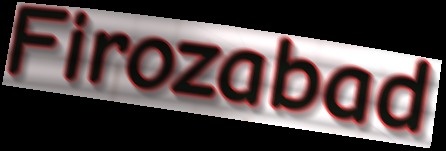
Firozabad